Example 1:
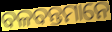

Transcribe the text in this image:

ବଳବନ୍ତମାନେ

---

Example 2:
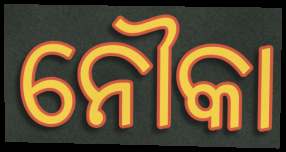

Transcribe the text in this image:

ନୌକା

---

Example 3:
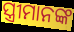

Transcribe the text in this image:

ସ୍ତ୍ରୀମାନଙ୍କ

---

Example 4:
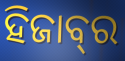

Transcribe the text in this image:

ହିଜାବ୍‌ର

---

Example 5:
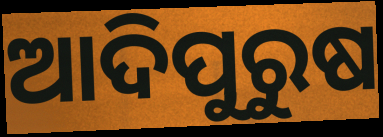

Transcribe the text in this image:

ଆଦିପୁରୁଷ